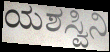
ಯಶಸ್ವಿನಿ